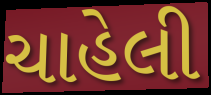
ચાહેલી